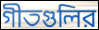
গীতগুলির